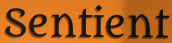
Sentient